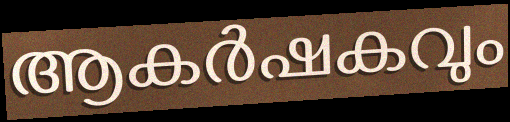
ആകർഷകവും